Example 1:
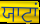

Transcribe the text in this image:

ਯਾਟਾਂ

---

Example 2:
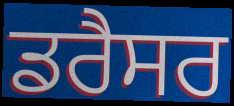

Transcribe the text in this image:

ਡਰੈਸਰ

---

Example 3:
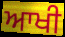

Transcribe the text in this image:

ਆਖੀ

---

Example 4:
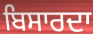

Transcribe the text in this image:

ਬਿਸਾਰਦਾ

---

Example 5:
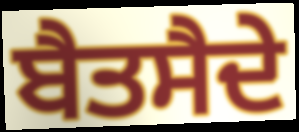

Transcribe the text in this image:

ਬੈਤਸੈਦੇ